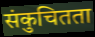
संकुचितता